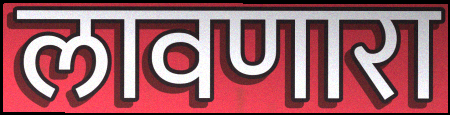
लावणारा